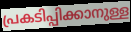
പ്രകടിപ്പിക്കാനുള്ള